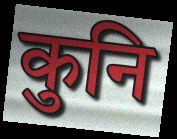
कुनि